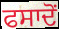
ਫਸਾਦੋਂ